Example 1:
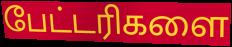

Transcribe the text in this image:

பேட்டரிகளை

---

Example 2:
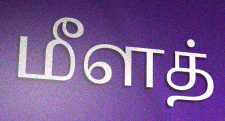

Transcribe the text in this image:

மீளத்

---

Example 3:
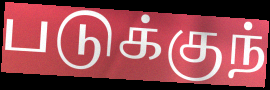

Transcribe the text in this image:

படுக்குந்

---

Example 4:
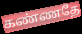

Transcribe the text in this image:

கண்ணதே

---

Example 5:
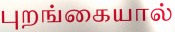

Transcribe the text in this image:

புறங்கையால்